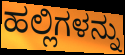
ಹಲ್ಲಿಗಳನ್ನು